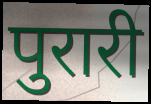
पुरारी